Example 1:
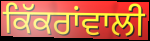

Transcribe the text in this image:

ਕਿੱਕਰਾਂਵਾਲੀ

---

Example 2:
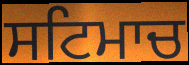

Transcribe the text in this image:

ਸਟਿਮਾਚ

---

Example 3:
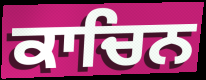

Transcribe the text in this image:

ਕਾਚਿਨ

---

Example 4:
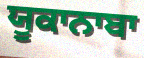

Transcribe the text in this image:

ਯੂਕਾਨਾਬਾ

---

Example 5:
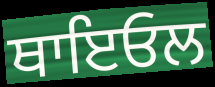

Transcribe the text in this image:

ਥਾਇਓਲ